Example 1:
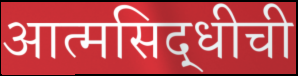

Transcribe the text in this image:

आत्मसिद्धीची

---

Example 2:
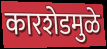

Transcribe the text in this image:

कारशेडमुळे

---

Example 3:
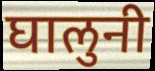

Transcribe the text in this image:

घालुनी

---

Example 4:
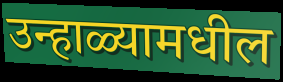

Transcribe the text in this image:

उन्हाळ्यामधील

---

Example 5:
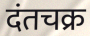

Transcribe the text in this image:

दंतचक्र